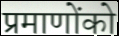
प्रमाणोंको